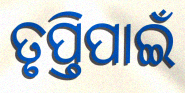
ତୃପ୍ତିପାଇଁ